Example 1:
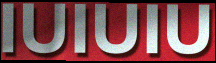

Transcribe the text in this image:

IUIUIU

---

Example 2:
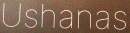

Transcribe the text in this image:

Ushanas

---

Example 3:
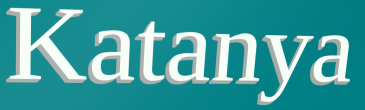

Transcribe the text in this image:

Katanya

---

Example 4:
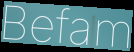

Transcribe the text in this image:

Befam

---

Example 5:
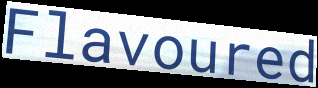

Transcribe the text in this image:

Flavoured